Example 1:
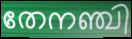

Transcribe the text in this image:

തേനഞ്ചി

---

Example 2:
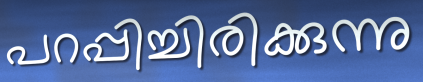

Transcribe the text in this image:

പറപ്പിച്ചിരിക്കുന്നു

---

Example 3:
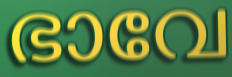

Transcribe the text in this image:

ഭാവേ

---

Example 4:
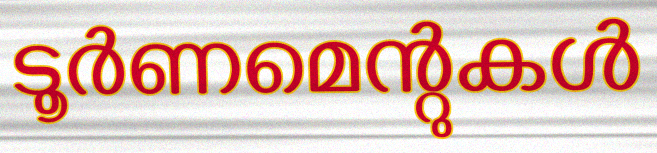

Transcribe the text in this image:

ടൂർണമെന്റുകൾ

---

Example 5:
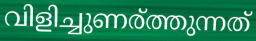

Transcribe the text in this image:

വിളിച്ചുണര്ത്തുന്നത്